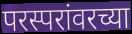
परस्परांवरच्या